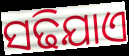
ସଢିଯାଏ